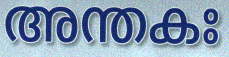
അന്തകഃ